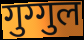
गुग्‍गुल